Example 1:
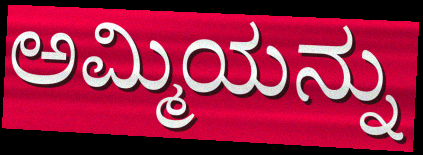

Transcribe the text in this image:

ಅಮ್ಮಿಯನ್ನು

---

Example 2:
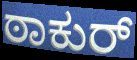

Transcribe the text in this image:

ಠಾಕುರ್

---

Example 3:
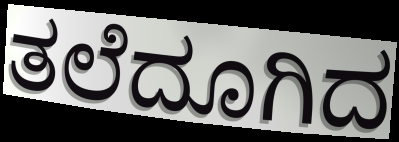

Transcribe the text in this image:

ತಲೆದೂಗಿದ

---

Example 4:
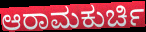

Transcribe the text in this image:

ಆರಾಮಕುರ್ಚಿ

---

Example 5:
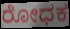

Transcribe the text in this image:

ರೋಧಕ